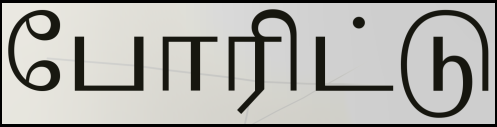
போரிட்டு